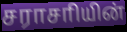
சராசரியின்